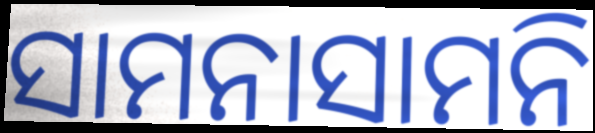
ସାମନାସାମନି